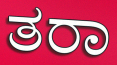
ತರಾ